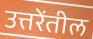
उत्तरेंतील